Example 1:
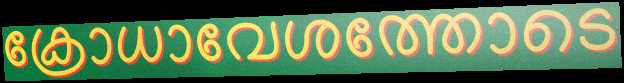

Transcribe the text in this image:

ക്രോധാവേശത്തോടെ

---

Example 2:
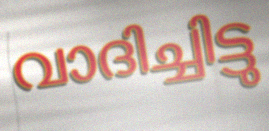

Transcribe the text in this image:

വാദിച്ചിട്ടു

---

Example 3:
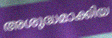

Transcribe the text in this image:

അശുദ്ധമാക്കിയ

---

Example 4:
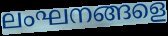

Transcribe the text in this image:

ലംഘനങ്ങളെ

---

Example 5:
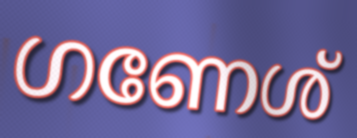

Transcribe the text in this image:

ഗണേശ്